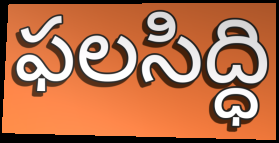
ఫలసిద్ధి